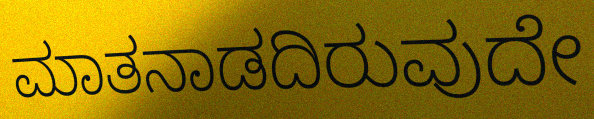
ಮಾತನಾಡದಿರುವುದೇ